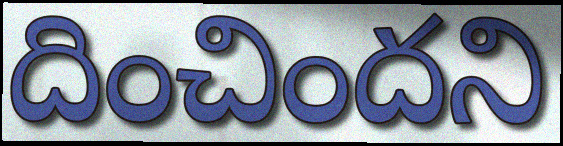
దించిందని